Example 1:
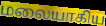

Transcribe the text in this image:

மலையாகிய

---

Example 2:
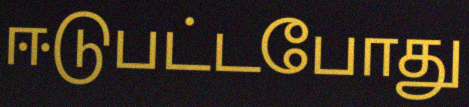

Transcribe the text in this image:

ஈடுபட்டபோது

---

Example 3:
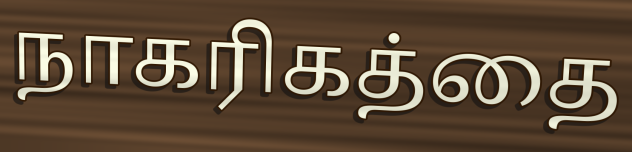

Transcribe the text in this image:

நாகரிகத்தை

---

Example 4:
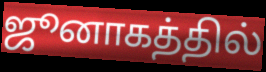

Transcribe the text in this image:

ஜூனாகத்தில்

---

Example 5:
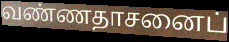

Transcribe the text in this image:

வண்ணதாசனைப்